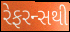
રેફરન્સથી